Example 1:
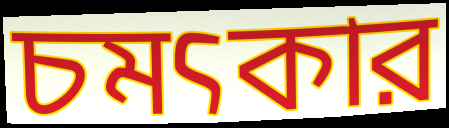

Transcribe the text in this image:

চমৎকার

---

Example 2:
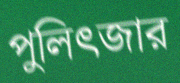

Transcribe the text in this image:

পুলিৎজার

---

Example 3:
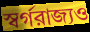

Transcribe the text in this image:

স্বর্গরাজ্যও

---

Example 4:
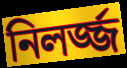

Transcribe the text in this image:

নিলর্জ্জ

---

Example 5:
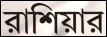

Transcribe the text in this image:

রাশিয়ার